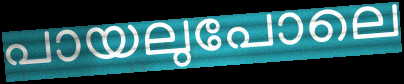
പായലുപോലെ